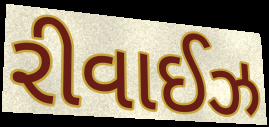
રીવાઈઝ